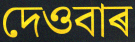
দেওবাৰ